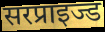
सरप्राइज्ड